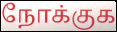
நோக்குக